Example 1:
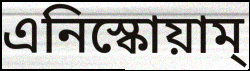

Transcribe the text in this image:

এনিস্কোয়াম্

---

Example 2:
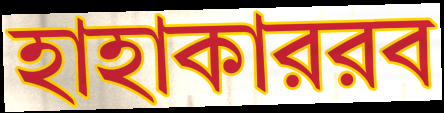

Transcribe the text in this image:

হাহাকাররব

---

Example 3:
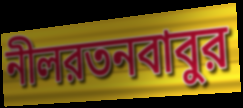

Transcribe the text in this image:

নীলরতনবাবুর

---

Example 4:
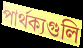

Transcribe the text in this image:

পার্থক্যগুলি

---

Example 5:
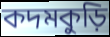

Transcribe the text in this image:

কদমকুড়ি